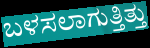
ಬಳಸಲಾಗುತ್ತಿತ್ತು